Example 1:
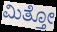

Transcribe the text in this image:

ಮಿತ್ತೋ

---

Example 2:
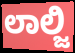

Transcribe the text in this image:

ಲಾಲ್ಜಿ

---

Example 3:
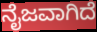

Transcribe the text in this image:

ನೈಜವಾಗಿದೆ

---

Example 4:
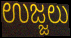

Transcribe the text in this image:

ಉಜ್ಜಲು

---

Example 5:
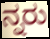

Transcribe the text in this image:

ನ್ನರು